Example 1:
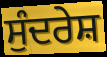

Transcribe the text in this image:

ਸੁੰਦਰੇਸ਼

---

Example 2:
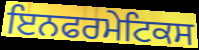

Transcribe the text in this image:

ਇਨਫਰਮੇਟਿਕਸ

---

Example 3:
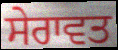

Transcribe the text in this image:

ਸੇਰਾਵਤ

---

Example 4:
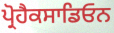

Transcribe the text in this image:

ਪ੍ਰੋਹੈਕਸਾਡਿਓਨ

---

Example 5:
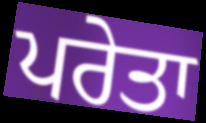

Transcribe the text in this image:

ਪਰੇਤਾ